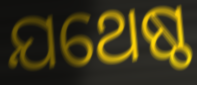
ଯଥେଷ୍ଠ